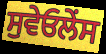
ਸੁਵੇਓਲੇਂਸ